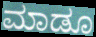
ಮಾಡೂ